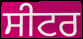
ਸੀਟਰ